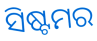
ସିଷ୍ଟମର